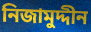
নিজামুদ্দীন